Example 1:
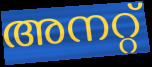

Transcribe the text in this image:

അനറ്റ്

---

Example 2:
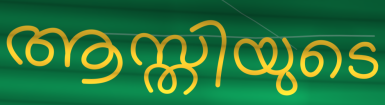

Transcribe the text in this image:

ആസ്തിയുടെ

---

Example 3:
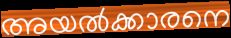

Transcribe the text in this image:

അയൽക്കാരനെ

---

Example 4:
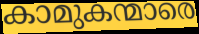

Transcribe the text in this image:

കാമുകന്മാരെ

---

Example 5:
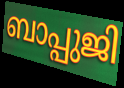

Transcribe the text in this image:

ബാപ്പുജി